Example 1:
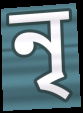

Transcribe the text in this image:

নৃ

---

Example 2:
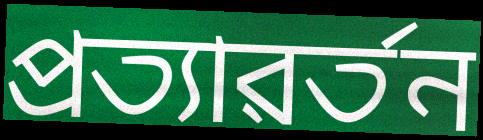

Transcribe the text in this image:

প্ৰত্যাৱৰ্তন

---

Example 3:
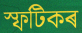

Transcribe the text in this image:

স্ফটিকৰ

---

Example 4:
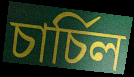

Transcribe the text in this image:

চাৰ্চিল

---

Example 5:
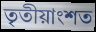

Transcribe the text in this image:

তৃতীয়াংশত